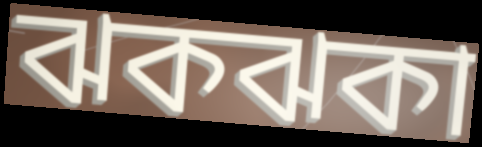
ঝকঝকা